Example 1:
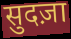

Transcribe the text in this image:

सुदज़ा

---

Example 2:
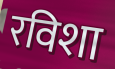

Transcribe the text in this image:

रविशा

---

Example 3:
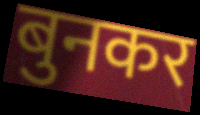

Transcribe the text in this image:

बुनकर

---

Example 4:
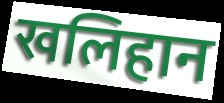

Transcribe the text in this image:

खलिहान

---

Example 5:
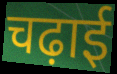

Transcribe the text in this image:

चढ़ाई